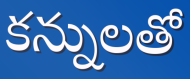
కన్నులతో